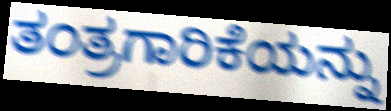
ತಂತ್ರಗಾರಿಕೆಯನ್ನು